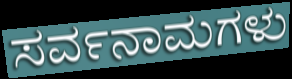
ಸರ್ವನಾಮಗಳು